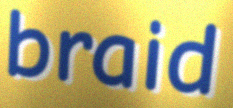
braid